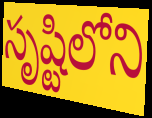
సృష్టిలోని